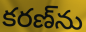
కరణ్‌ను